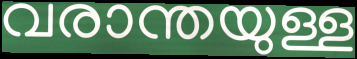
വരാന്തയുള്ള